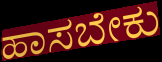
ಹಾಸಬೇಕು